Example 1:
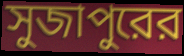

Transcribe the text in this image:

সুজাপুরের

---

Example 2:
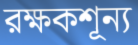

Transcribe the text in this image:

রক্ষকশূন্য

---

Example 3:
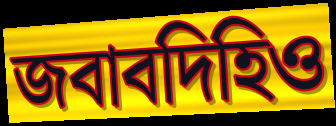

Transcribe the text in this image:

জবাবদিহিও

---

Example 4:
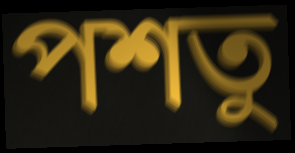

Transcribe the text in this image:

পশতু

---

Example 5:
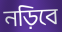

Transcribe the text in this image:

নড়িবে